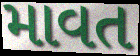
માવત